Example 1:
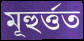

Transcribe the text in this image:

মূহুৰ্ত্তত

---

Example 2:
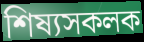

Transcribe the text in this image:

শিষ্যসকলক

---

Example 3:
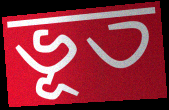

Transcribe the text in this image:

ভূত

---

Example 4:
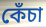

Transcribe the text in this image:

কেঁচা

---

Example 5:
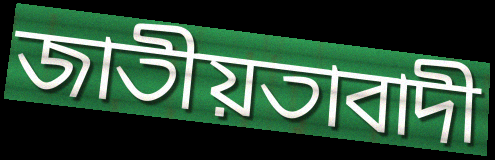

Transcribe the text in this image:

জাতীয়তাবাদী